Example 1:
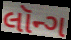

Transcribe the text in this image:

લૉન્ગ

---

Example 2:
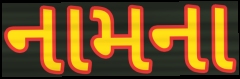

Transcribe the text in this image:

નામના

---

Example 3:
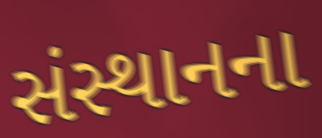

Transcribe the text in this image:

સંસ્થાનના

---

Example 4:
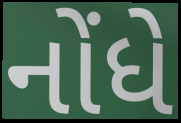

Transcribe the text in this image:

નોંધે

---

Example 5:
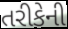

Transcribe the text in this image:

તરીકેની